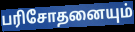
பரிசோதனையும்